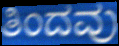
ತಿಂದವು